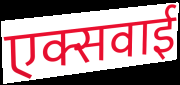
एक्सवाई